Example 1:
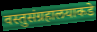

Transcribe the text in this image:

वस्तुसंग्रहालयाकडे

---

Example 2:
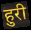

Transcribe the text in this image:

हुरी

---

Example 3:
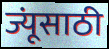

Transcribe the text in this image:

ज्यूंसाठी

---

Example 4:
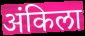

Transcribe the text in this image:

अंकिला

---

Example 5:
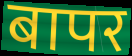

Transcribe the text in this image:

बापर